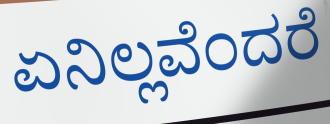
ಏನಿಲ್ಲವೆಂದರೆ